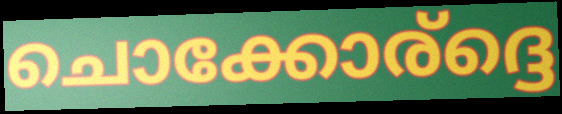
ചൊക്കോര്ദ്ദെ